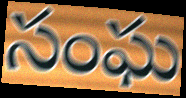
సంఘ